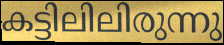
കട്ടിലിലിരുന്നു